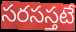
సరసస్తటే